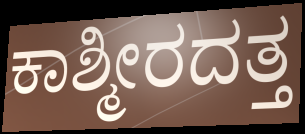
ಕಾಶ್ಮೀರದತ್ತ